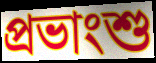
প্রভাংশু